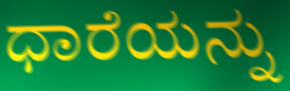
ಧಾರೆಯನ್ನು